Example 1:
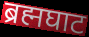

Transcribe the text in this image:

ब्रह्मघाट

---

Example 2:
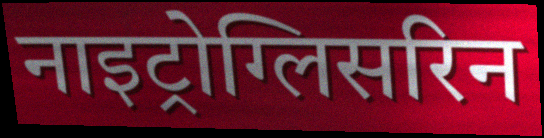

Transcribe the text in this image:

नाइट्रोग्लिसरिन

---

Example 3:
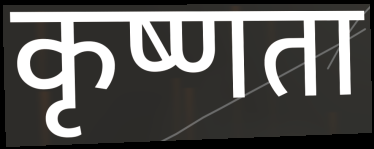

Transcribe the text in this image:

कृष्णता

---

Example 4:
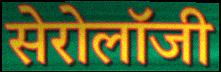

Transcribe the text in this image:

सेरोलॉजी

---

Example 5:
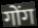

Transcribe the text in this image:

गोंग